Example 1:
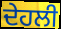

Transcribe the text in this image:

ਦੇਹਲੀ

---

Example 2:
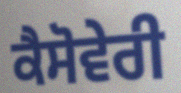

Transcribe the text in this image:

ਕੈਸੋਵੇਰੀ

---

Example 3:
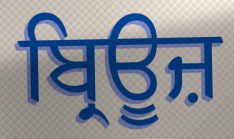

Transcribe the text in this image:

ਬ੍ਰਿਊਜ਼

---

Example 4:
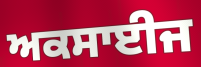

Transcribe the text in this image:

ਅਕਸਾਈਜ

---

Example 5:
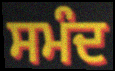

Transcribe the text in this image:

ਸਮੰਦ